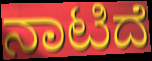
ನಾಟಿದೆ